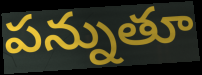
పన్నుతూ